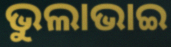
ଭୁଲାଭାଇ